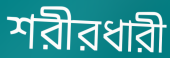
শরীরধারী